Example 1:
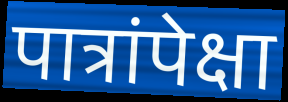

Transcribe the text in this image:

पात्रांपेक्षा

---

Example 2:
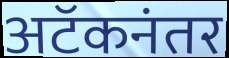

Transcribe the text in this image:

अटॅकनंतर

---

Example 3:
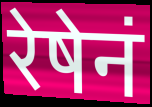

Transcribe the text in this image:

रेषेनं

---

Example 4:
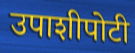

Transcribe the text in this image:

उपाशीपोटी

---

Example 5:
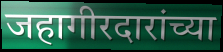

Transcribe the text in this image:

जहागीरदारांच्या